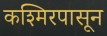
कश्मिरपासून